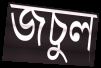
জচুল